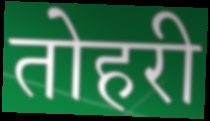
तोहरी